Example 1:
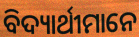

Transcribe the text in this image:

ବିଦ୍ୟାର୍ଥୀମାନେ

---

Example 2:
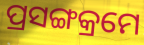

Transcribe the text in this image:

ପ୍ରସଙ୍ଗକ୍ରମେ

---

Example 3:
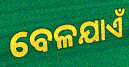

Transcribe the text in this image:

ବେଳଯାଏଁ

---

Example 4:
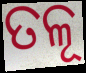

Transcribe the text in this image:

ତଳୂ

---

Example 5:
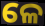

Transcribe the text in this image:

ଳେ